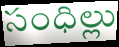
సంధిల్లు